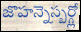
జొహన్నెస్బర్గ్లో